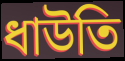
ধাউতি